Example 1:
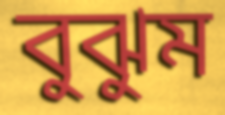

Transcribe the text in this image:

বুঝুম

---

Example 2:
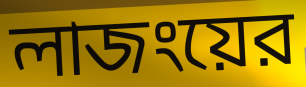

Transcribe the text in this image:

লাজংয়ের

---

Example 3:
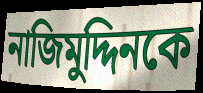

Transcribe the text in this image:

নাজিমুদ্দিনকে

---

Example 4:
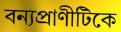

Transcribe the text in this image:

বন্যপ্রাণীটিকে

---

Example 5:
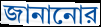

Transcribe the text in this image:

জানানোর